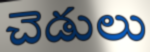
చెడులు